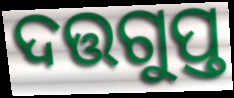
ଦତ୍ତଗୁପ୍ତ